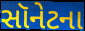
સૉનેટના